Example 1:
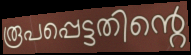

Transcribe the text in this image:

രൂപപ്പെട്ടതിന്റെ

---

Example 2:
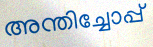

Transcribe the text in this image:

അന്തിച്ചോപ്പ്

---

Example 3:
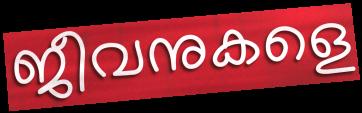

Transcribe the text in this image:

ജീവനുകളെ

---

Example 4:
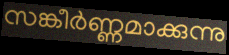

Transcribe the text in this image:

സങ്കീർണ്ണമാക്കുന്നു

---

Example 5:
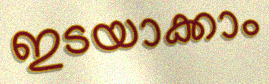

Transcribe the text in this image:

ഇടയാക്കാം